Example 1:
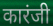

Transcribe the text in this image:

कारंजी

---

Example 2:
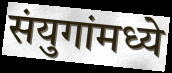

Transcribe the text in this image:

संयुगांमध्ये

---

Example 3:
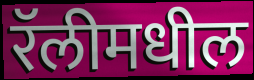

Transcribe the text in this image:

रॅलीमधील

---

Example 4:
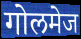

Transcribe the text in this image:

गोलमेज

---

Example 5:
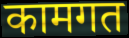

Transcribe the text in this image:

कामगत